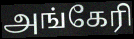
அங்கேரி